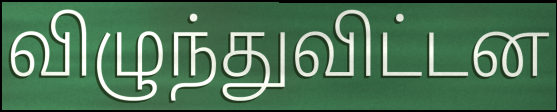
விழுந்துவிட்டன